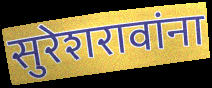
सुरेशरावांना